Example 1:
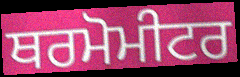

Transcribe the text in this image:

ਥਰਮੋਮੀਟਰ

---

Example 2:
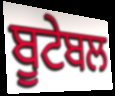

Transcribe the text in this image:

ਬੂਟੇਬਲ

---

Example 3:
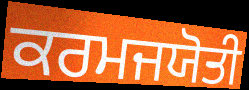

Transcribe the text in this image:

ਕਰਮਜਯੋਤੀ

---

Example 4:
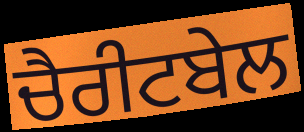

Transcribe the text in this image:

ਚੈਰੀਟਬੇਲ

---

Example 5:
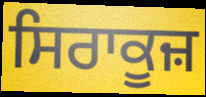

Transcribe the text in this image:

ਸਿਰਾਕੂਜ਼